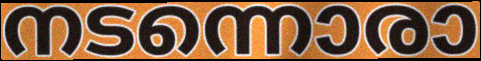
നടന്നൊരാ